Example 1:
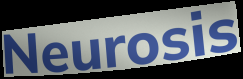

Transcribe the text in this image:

Neurosis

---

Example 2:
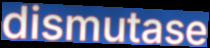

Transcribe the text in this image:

dismutase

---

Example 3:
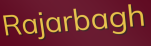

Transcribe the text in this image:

Rajarbagh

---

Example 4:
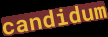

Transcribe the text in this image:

candidum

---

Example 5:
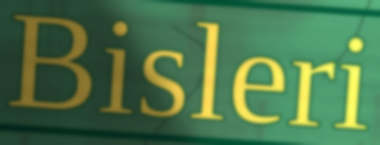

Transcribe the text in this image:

Bisleri